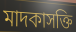
মাদকাসক্তি